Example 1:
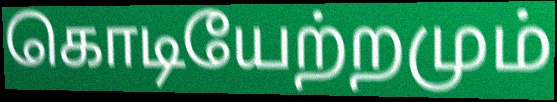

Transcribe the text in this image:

கொடியேற்றமும்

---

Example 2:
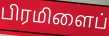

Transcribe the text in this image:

பிரமிளைப்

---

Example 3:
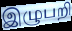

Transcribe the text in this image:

இழுபறி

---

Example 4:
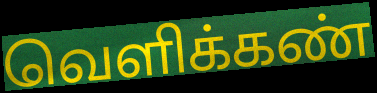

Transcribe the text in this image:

வெளிக்கண்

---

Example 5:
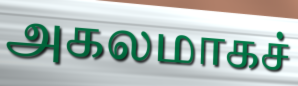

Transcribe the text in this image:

அகலமாகச்